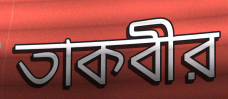
তাকবীর